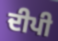
ਦੀਪੀ